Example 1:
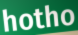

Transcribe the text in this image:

hotho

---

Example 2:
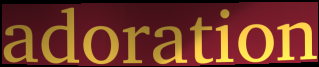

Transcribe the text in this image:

adoration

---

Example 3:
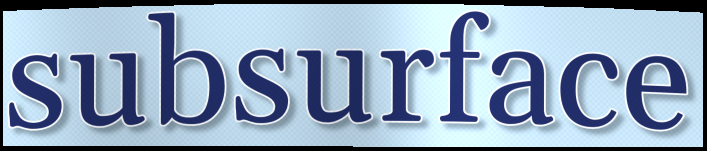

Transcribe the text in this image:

subsurface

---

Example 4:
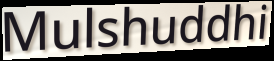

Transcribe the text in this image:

Mulshuddhi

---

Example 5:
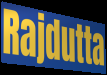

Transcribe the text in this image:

Rajdutta